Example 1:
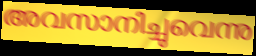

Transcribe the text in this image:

അവസാനിച്ചുവെന്നു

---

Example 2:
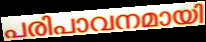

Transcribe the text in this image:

പരിപാവനമായി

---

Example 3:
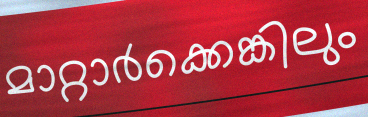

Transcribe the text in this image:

മാറ്റാർക്കെങ്കിലും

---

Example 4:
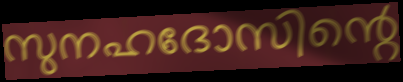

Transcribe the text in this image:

സുനഹദോസിന്റെ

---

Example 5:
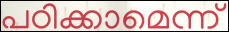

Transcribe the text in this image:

പഠിക്കാമെന്ന്